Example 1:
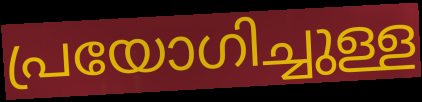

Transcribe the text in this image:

പ്രയോഗിച്ചുള്ള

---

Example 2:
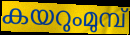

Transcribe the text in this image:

കയറുംമുമ്പ്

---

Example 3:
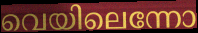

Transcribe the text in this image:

വെയിലെന്നോ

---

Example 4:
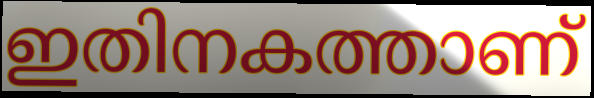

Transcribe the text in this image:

ഇതിനകത്താണ്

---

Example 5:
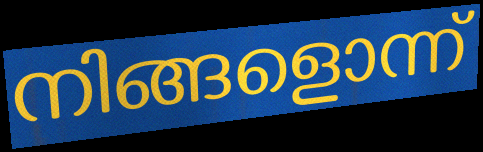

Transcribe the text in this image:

നിങ്ങളൊന്ന്